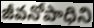
జీవనోపాధిని